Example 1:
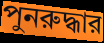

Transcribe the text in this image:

পুনরুদ্ধার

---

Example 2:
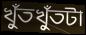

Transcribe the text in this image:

খুঁতখুঁতটা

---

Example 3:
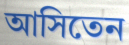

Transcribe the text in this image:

আসিতেন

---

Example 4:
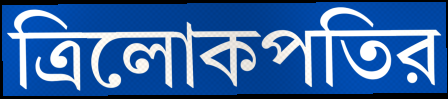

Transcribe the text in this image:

ত্রিলোকপতির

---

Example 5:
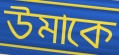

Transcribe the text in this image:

উমাকে